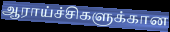
ஆராய்ச்சிகளுக்கான